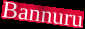
Bannuru